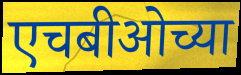
एचबीओच्या